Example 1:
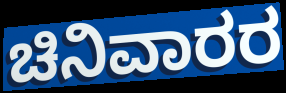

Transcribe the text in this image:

ಚಿನಿವಾರರ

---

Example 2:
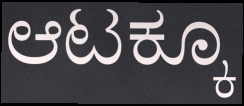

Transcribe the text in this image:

ಆಟಕ್ಕೂ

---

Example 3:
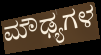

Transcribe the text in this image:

ಮೌಢ್ಯಗಳ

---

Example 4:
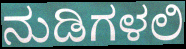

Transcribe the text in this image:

ನುಡಿಗಳಲಿ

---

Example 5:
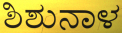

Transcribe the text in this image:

ಶಿಶುನಾಳ